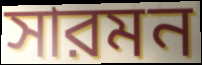
সারমন